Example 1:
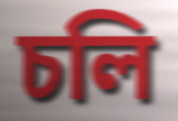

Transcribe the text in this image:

চলি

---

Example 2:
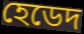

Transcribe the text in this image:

হেডেদ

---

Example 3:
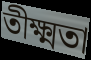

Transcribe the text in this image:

তীক্ষ্মতা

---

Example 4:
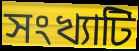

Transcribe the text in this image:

সংখ্যাটি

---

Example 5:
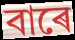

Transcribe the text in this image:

বাৰে